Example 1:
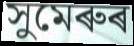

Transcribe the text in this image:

সুমেৰুৰ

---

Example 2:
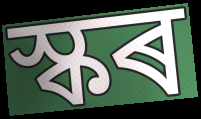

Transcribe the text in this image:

স্কৰ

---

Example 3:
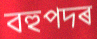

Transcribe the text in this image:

বহুপদৰ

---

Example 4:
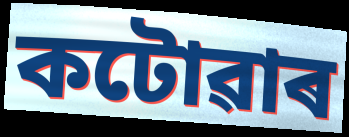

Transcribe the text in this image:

কটোৱাৰ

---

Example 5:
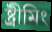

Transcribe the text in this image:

ষ্ট্ৰীমিং